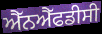
ਐੱਨਐੱਫਡੀਸੀ